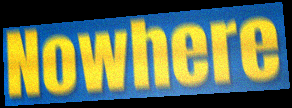
Nowhere